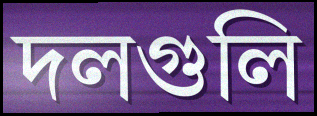
দলগুলি